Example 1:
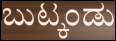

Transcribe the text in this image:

ಬುಟ್ಕಂಡು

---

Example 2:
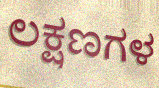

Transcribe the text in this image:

ಲಕ್ಷಣಗಳ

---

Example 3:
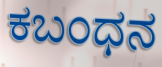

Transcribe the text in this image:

ಕಬಂಧನ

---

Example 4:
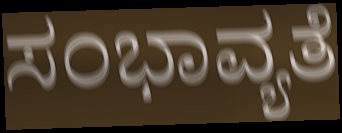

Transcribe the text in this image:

ಸಂಭಾವ್ಯತೆ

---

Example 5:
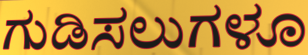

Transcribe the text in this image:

ಗುಡಿಸಲುಗಳೂ